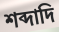
শব্দাদি